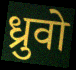
ध्रुवो